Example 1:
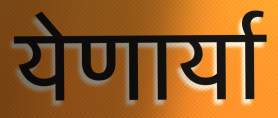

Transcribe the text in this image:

येणार्या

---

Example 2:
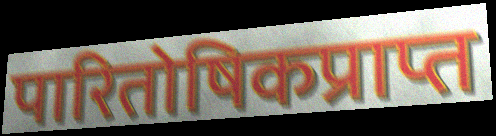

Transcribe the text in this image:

पारितोषिकप्राप्त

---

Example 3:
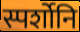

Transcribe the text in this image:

स्पर्शोनि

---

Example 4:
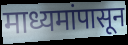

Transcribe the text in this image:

माध्यमांपासून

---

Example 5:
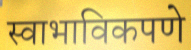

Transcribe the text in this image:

स्वाभाविकपणे